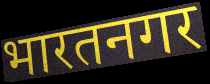
भारतनगर